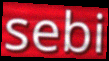
sebi